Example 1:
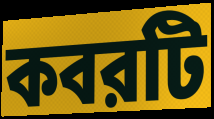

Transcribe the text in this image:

কবরটি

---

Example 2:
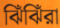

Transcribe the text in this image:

ঝিঁঝিঁরা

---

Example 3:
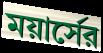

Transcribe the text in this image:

ময়ার্সের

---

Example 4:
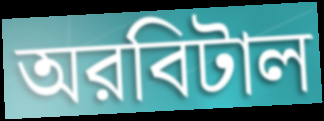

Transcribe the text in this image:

অরবিটাল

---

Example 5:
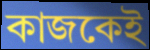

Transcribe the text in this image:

কাজকেই